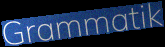
Grammatik